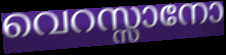
വെറസ്സാനോ